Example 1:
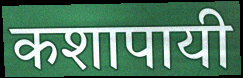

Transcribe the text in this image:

कशापायी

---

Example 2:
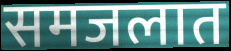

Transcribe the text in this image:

समजलात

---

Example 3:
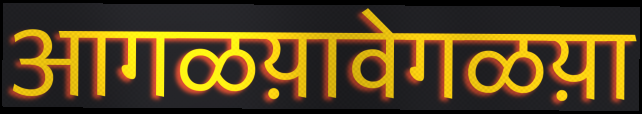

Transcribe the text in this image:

आगळय़ावेगळय़ा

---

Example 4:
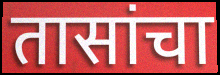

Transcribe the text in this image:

तासांचा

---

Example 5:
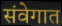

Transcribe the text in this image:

संवेगात